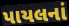
પાયલનાં